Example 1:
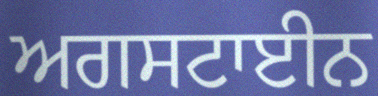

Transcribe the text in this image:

ਅਗਸਟਾਈਨ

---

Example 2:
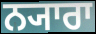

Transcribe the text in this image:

ਨ੍ਯਾਰਾ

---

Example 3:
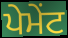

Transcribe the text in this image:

ਪੇਮੇਂਟ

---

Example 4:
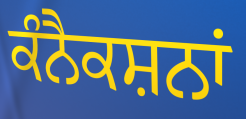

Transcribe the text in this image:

ਕੰਨੈਕਸ਼ਨਾਂ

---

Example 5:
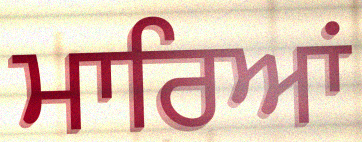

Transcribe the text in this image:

ਮਾਰਿਆਂ